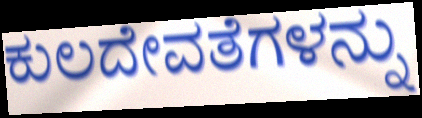
ಕುಲದೇವತೆಗಳನ್ನು